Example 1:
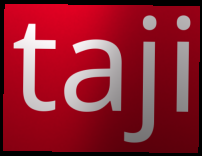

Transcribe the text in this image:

taji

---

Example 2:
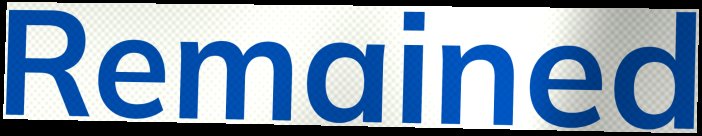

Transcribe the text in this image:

Remained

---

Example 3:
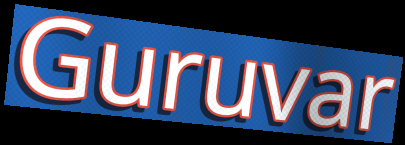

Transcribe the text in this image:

Guruvar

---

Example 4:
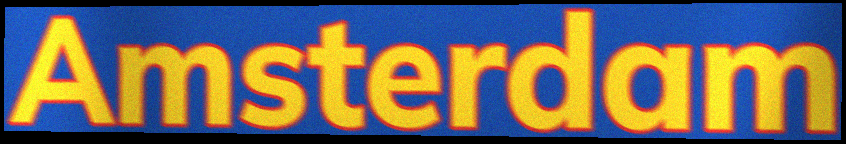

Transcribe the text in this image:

Amsterdam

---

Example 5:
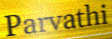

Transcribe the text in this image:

Parvathi